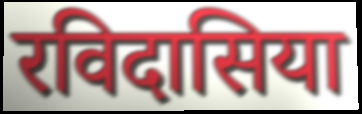
रविदासिया